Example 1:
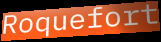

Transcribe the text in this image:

Roquefort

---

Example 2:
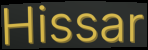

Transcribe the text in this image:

Hissar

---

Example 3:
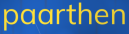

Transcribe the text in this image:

paarthen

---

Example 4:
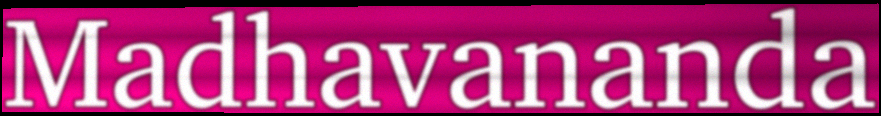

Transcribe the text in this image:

Madhavananda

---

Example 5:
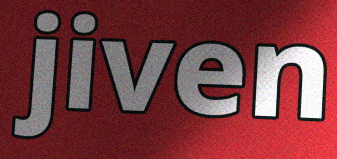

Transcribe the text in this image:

jiven